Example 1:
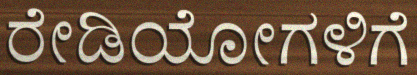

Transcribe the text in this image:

ರೇಡಿಯೋಗಳಿಗೆ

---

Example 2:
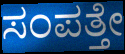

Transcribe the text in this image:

ಸಂಪತ್ತೇ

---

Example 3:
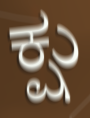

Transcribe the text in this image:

ಕ್ಷು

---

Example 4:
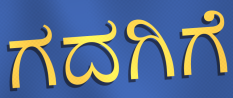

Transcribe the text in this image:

ಗದಗಿಗೆ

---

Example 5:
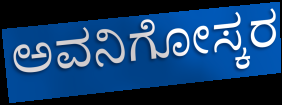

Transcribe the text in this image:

ಅವನಿಗೋಸ್ಕರ